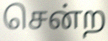
சென்ற